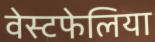
वेस्टफेलिया